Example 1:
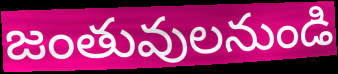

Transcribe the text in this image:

జంతువులనుండి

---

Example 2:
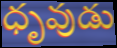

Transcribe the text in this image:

ధృవుడు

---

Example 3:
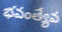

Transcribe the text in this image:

భవంత్యేవ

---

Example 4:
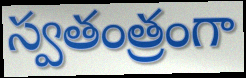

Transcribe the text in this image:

స్వతంత్రంగా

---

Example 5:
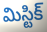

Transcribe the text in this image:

మిస్టిక్